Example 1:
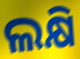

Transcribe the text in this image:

ଲକ୍ଷି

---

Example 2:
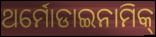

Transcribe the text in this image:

ଥର୍ମୋଡାଇନାମିକ୍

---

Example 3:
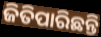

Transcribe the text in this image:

ଜିତିପାରିଛନ୍ତି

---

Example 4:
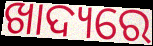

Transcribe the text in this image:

ଖାଦ୍ୟରେ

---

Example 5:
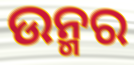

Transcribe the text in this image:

ଉନ୍ମର